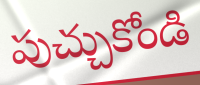
పుచ్చుకోండి